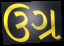
ઉગ્ર